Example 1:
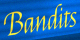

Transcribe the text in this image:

Bandits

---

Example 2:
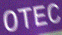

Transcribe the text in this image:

OTEC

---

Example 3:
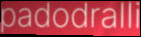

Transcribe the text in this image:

padodralli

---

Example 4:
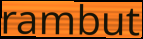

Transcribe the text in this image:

rambut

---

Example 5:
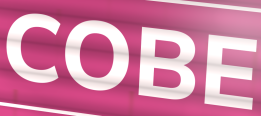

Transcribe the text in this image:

COBE